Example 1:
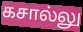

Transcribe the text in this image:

கசால்லு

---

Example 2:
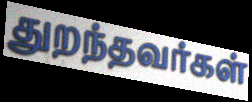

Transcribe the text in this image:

துறந்தவர்கள்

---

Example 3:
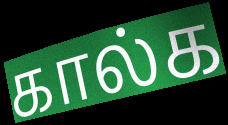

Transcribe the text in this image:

கால்க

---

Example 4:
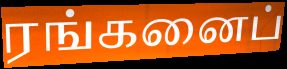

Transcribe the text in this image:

ரங்கனைப்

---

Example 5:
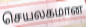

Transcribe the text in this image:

செயலகமான